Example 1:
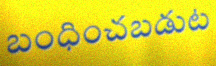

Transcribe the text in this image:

బంధించబడుట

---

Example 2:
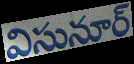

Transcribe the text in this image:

విసునూర్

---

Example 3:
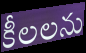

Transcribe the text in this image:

కీలలను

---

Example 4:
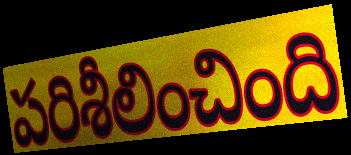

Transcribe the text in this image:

పరిశీలించింది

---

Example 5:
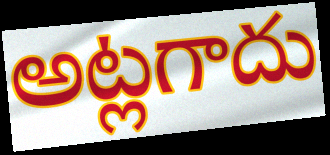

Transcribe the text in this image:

అట్లగాదు